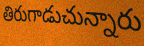
తిరుగాడుచున్నారు